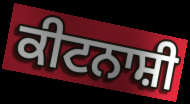
ਕੀਟਨਾਸ਼ੀ